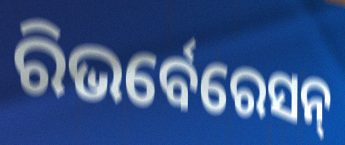
ରିଭର୍ବେରେସନ୍